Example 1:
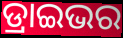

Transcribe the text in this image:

ଡ୍ରାଇଭର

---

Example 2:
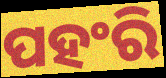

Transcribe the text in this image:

ପହଂରି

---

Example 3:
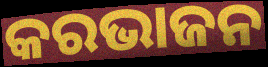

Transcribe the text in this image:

କରଭାଜନ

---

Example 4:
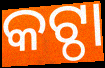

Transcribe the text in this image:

କଟ୍ଠା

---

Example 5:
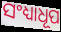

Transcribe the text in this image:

ସଂଧ୍ୟାଧୂପ